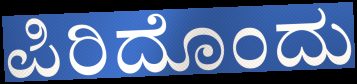
ಪಿರಿದೊಂದು